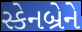
સ્કેનબ્રેને